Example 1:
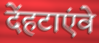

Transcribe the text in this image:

देंहटाएंवे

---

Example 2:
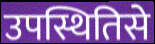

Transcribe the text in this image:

उपस्थितिसे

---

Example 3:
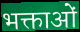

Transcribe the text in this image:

भक्ताओं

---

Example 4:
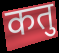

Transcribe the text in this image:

कतु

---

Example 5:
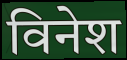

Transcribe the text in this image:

विनेश